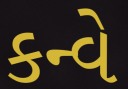
કન્વે